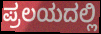
ಪ್ರಲಯದಲ್ಲಿ